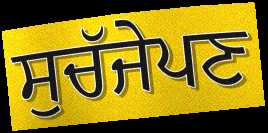
ਸੁਚੱਜੇਪਣ